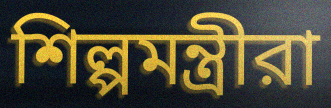
শিল্পমন্ত্রীরা